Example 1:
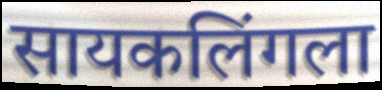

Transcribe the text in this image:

सायकलिंगला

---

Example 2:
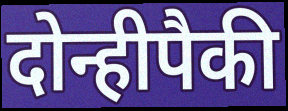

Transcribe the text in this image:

दोन्हीपैकी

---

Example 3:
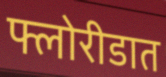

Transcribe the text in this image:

फ्लोरीडात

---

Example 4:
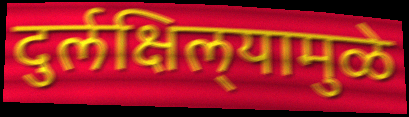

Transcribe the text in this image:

दुर्लक्षिल्यामुळे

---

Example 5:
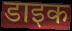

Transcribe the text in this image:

डाइक